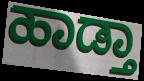
ಹಾಡ್ತಾ